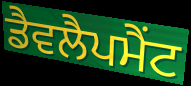
ਡੈਵਲੈਪਮੈਂਟ